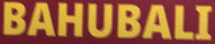
BAHUBALI